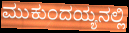
ಮುಕುಂದಯ್ಯನಲ್ಲಿ